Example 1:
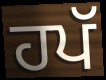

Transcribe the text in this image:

ਹਪੱ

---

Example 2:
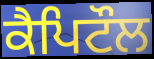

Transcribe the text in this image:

ਕੈਪਿਟੌਲ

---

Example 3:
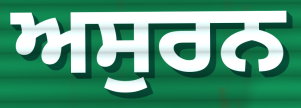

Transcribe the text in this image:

ਅਸੁਰਨ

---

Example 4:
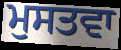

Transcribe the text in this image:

ਮੁਸਤਵਾ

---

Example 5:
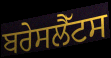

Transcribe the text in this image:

ਬਰੇਸਲੈੱਟਸ